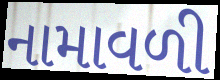
નામાવળી